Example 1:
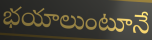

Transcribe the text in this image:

భయాలుంటూనే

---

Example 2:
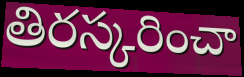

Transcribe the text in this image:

తిరస్కరించా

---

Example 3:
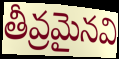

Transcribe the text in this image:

తీవ్రమైనవి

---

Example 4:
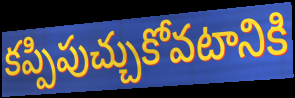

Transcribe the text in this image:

కప్పిపుచ్చుకోవటానికి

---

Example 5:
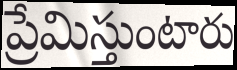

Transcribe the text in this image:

ప్రేమిస్తుంటారు